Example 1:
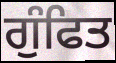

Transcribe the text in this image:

ਗੁੰਫਿਤ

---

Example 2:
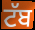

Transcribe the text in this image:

ਟੱਬ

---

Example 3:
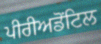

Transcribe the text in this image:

ਪੀਰੀਅਡੋਂਟਿਲ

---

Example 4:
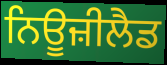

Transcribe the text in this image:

ਨਿਊਜ਼ੀਲੈਡ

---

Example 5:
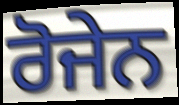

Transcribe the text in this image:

ਰੋਜੇਨ